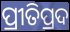
ପ୍ରୀତିପ୍ରଦ